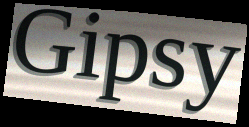
Gipsy